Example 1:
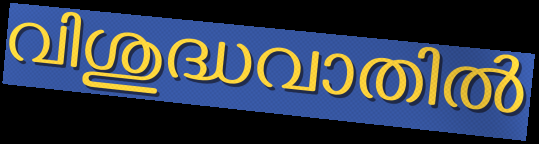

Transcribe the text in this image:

വിശുദ്ധവാതിൽ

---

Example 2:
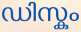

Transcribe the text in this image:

ഡിസ്കും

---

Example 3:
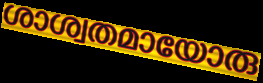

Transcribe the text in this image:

ശാശ്വതമായോരു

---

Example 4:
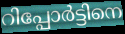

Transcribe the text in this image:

റിപ്പോർട്ടിനെ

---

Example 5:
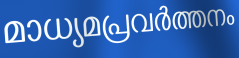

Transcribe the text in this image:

മാധ്യമപ്രവർത്തനം